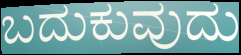
ಬದುಕುವುದು